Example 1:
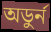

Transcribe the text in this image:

অডুর্ন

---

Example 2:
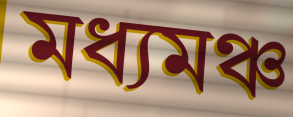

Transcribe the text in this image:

মধ্যমঞ্চ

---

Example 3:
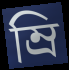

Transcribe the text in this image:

ম্রি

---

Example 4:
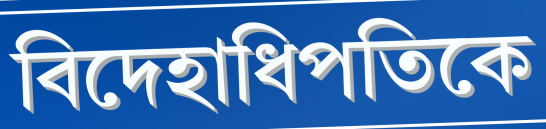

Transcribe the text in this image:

বিদেহাধিপতিকে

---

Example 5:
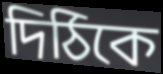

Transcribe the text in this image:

দিঠিকে